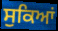
ਸੁਕਿਆਂ